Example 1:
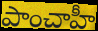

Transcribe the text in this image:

పాంచాహీ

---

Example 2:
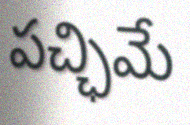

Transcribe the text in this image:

పచ్ఛిమే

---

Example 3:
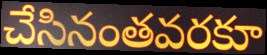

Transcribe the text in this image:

చేసినంతవరకూ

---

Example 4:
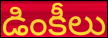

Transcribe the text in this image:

డింకీలు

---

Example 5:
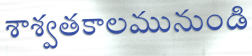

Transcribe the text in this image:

శాశ్వతకాలమునుండి